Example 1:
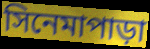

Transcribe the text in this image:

সিনেমাপাড়া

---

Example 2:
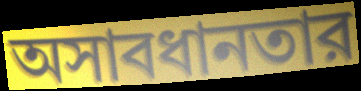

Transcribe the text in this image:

অসাবধানতার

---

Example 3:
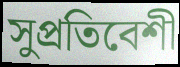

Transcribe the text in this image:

সুপ্রতিবেশী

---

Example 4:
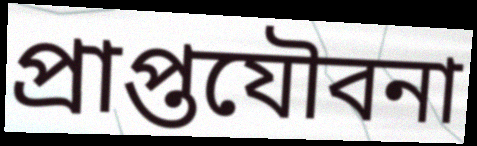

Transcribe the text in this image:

প্রাপ্তযৌবনা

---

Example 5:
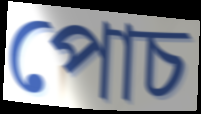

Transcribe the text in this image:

পোচ